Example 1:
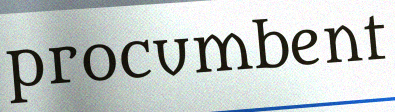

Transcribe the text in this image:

procumbent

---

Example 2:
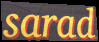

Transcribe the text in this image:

sarad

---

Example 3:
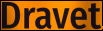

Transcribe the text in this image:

Dravet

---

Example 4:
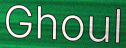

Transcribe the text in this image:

Ghoul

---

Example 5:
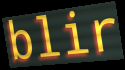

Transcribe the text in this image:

blir